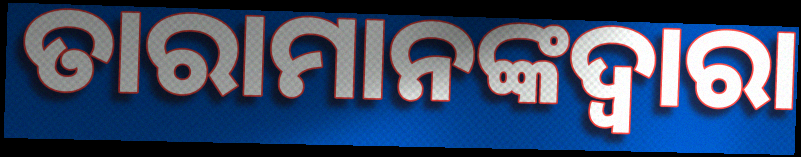
ତାରାମାନଙ୍କଦ୍ୱାରା